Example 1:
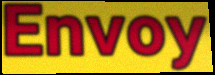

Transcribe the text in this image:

Envoy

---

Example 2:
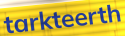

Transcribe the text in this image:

tarkteerth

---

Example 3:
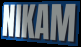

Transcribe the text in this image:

NIKAM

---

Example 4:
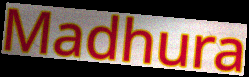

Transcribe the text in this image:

Madhura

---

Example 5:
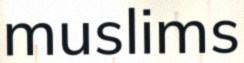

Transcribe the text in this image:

muslims